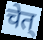
चेत्